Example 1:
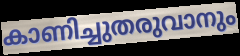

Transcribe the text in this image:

കാണിച്ചുതരുവാനും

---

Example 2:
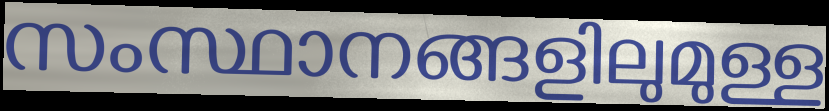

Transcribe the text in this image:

സംസ്ഥാനങ്ങളിലുമുള്ള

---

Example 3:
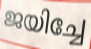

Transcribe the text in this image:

ജയിച്ചേ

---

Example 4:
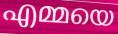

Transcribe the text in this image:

എമ്മയെ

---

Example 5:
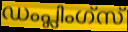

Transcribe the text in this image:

ഡംപ്ലിംഗ്സ്